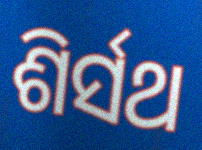
ଶିର୍ସଥ